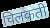
चिलकती